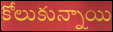
కోలుకున్నాయి